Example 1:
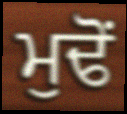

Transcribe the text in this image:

ਮੁਢੋਂ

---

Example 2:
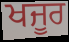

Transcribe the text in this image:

ਖਜੂਰ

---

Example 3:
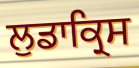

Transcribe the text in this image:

ਲੁਡਾਕ੍ਰਿਸ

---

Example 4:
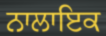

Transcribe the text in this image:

ਨਾਲਾਇਕ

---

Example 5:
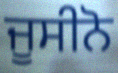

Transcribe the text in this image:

ਜੂਸੀਨੋ